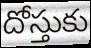
దోస్తుకు